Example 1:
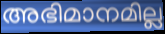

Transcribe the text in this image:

അഭിമാനമില്ല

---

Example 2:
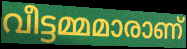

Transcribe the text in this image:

വീട്ടമ്മമാരാണ്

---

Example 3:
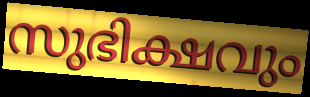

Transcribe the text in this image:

സുഭിക്ഷവും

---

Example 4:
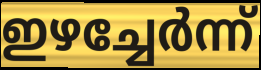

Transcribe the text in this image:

ഇഴച്ചേർന്ന്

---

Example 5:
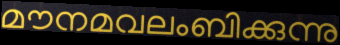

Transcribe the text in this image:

മൗനമവലംബിക്കുന്നു